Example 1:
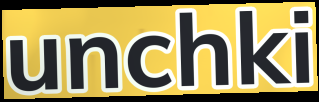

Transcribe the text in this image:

unchki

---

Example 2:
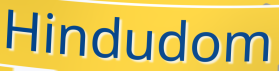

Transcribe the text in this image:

Hindudom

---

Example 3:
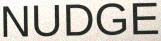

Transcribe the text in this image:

NUDGE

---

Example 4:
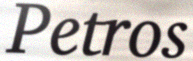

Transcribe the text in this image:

Petros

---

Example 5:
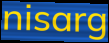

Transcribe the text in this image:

nisarg